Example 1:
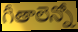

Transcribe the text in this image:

గీతాలెన్నో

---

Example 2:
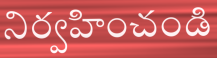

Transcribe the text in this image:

నిర్వహించండి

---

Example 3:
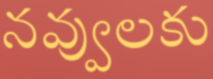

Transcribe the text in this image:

నవ్వులకు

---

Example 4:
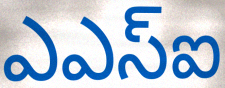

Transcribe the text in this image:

ఎఎస్ఐ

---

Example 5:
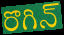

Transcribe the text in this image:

రొగిన్